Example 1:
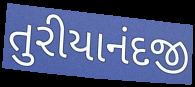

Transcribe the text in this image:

તુરીયાનંદજી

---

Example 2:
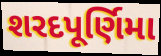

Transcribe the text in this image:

શરદપૂર્ણિમા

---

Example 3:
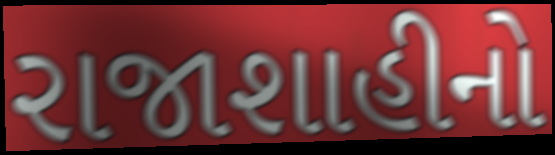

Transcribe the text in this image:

રાજાશાહીનો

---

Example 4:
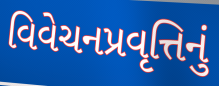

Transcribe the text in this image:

વિવેચનપ્રવૃત્તિનું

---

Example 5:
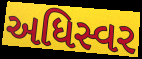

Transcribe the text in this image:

અધિસ્વર